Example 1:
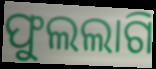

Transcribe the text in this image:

ଫୁଲଲାଗି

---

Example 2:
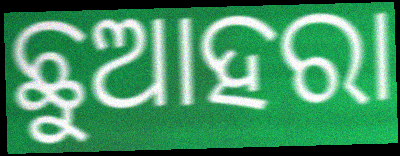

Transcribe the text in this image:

ଛୁଆହରା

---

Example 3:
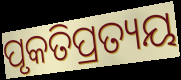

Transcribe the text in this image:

ପୃକତିପ୍ରତ୍ୟୟ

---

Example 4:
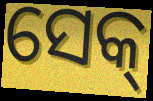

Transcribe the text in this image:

ସେକ୍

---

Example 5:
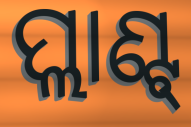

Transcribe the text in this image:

ପ୍ଲାଣ୍ଟ୍